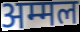
अम्मल